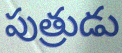
పుత్రుడు